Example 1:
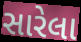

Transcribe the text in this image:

સારેલા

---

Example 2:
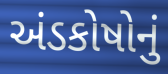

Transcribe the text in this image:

અંડકોષોનું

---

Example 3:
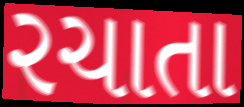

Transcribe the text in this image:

રચાતા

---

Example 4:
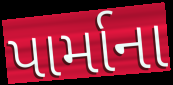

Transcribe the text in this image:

પાર્માના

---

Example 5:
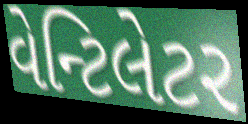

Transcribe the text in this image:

વેન્‍ટિલેટર